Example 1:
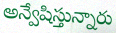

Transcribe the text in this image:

అన్వేషిస్తున్నారు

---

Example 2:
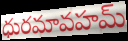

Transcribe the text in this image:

ధురమావహమ్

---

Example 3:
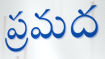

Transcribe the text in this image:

ప్రమద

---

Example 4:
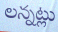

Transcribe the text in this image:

లన్నట్లు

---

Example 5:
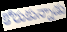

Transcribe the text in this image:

కోరుకున్నాడు